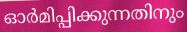
ഓർമിപ്പിക്കുന്നതിനും